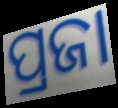
ପ୍ରଜା